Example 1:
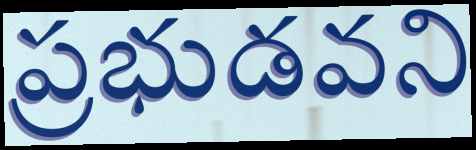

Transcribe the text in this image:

ప్రభుడవని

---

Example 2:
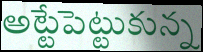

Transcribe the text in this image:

అట్టేపెట్టుకున్న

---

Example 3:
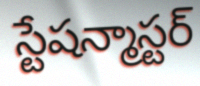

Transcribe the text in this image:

స్టేషన్మాస్టర్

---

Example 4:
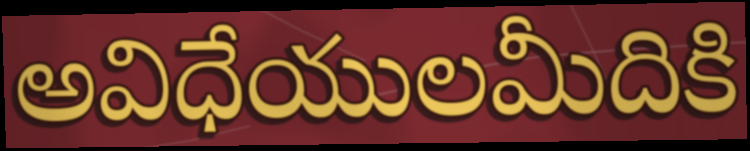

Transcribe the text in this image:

అవిధేయులమీదికి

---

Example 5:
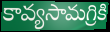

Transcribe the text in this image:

కావ్యసామగ్రికి